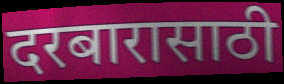
दरबारासाठी